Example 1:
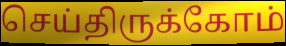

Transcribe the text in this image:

செய்திருக்கோம்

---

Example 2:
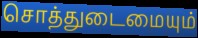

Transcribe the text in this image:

சொத்துடைமையும்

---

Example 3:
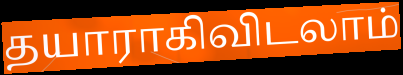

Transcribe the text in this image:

தயாராகிவிடலாம்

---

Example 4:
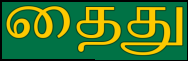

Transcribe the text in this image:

தைது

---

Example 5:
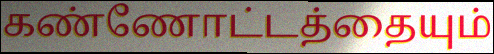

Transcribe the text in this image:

கண்ணோட்டத்தையும்